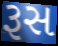
રૂસ